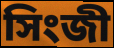
সিংজী